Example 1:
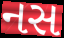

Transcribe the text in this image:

નસ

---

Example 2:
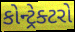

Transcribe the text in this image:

કોન્ટ્રેક્ટરો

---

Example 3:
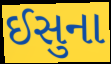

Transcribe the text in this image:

ઈસુના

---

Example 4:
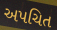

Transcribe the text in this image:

અપચિત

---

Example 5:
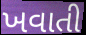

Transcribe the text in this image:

ખવાતી